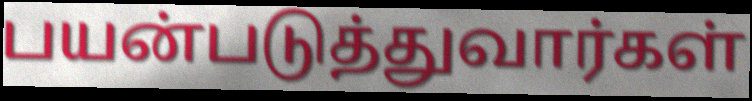
பயன்படுத்துவார்கள்